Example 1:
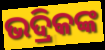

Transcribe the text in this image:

ଭଦ୍ରିକଙ୍କ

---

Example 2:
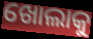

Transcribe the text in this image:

ଖୋଲାକୁ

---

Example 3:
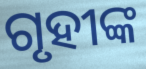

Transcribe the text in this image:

ଗୃହୀଙ୍କ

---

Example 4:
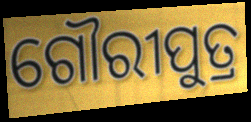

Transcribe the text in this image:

ଗୌରୀପୁତ୍ର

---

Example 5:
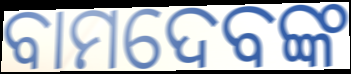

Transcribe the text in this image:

ବାମଦେବଙ୍କ